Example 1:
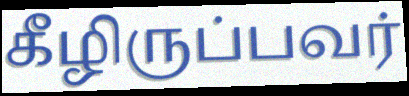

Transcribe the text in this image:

கீழிருப்பவர்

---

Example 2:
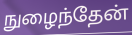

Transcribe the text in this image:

நுழைந்தேன்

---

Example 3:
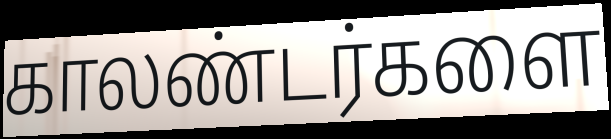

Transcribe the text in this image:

காலண்டர்களை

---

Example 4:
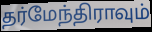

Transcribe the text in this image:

தர்மேந்திராவும்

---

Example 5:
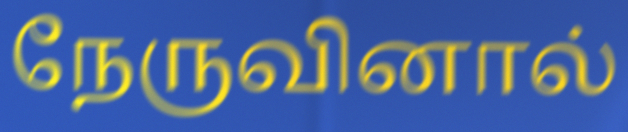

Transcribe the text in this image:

நேருவினால்